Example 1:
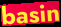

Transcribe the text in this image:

basin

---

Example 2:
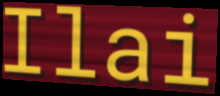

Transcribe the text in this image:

Ilai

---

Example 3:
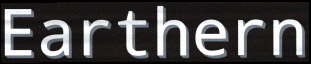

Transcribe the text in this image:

Earthern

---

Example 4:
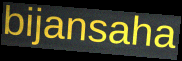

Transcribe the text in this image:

bijansaha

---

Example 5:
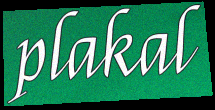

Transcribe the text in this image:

plakal